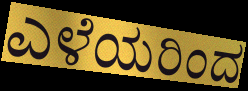
ಎಳೆಯರಿಂದ